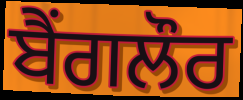
ਬੈਂਗਲੌਰ